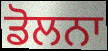
ਡੋਲਨਾ